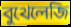
বুথেলেজি